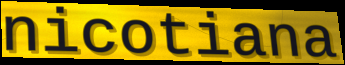
nicotiana